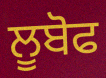
ਲੂਬੋਫ